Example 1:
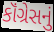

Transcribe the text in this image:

કૉંગ્રેસનું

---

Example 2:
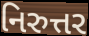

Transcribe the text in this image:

નિરુત્તર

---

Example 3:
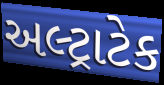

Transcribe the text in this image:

અલ્ટ્રાટેક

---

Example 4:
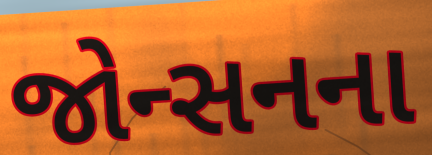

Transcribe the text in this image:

જોન્સનના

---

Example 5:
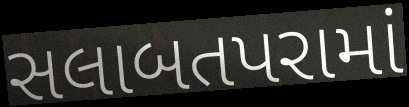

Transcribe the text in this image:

સલાબતપરામાં